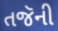
તજૅની